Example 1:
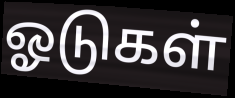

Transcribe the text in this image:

ஓடுகள்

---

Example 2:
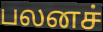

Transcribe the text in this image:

பலனச்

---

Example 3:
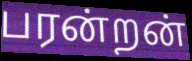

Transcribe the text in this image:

பரன்றன்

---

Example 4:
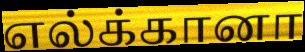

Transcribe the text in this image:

எல்க்கானா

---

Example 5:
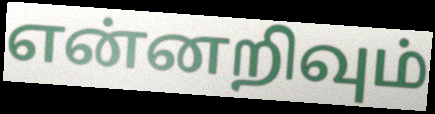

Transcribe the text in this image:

என்னறிவும்